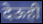
देऊही